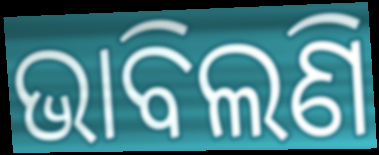
ଭାବିଲଣି